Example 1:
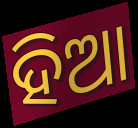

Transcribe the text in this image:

ହିଆ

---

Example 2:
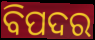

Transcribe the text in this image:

ବିପଦର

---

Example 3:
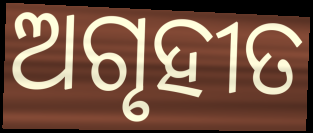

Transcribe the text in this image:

ଅଗୃହୀତ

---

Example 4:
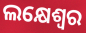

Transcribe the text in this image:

ଲକ୍ଷେଶ୍ଵର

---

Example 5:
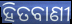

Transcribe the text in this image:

ହିତବାଣୀ